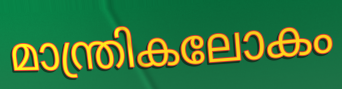
മാന്ത്രികലോകം